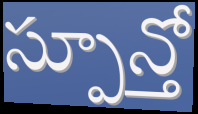
స్పూన్తో